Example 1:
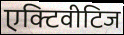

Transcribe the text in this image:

एक्टिवीटिज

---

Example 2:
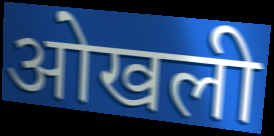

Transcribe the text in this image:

ओखली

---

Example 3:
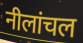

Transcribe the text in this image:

नीलांचल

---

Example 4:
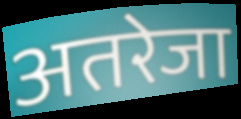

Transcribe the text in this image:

अतरेजा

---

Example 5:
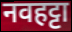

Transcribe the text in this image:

नवहट्टा